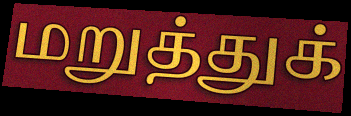
மறுத்துக்